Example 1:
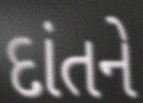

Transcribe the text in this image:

દાંતને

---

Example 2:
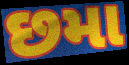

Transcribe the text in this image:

છમા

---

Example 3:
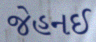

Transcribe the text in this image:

જેહનઈ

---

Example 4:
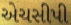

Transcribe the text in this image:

એચસીપી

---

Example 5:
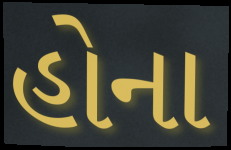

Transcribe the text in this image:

હોના